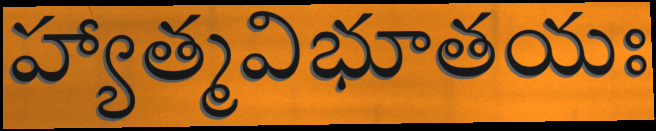
హ్యాత్మవిభూతయః